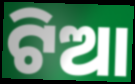
ଟିଆ